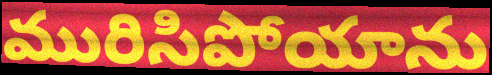
మురిసిపోయాను